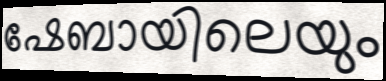
ഷേബായിലെയും